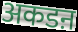
अकडऩ